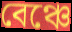
বেঞ্চে